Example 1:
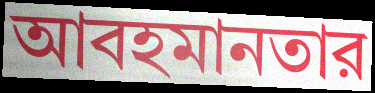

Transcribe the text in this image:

আবহমানতার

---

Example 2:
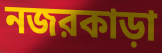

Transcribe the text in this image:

নজরকাড়া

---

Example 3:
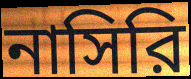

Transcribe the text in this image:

নাসিরি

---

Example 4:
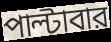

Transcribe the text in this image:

পাল্টাবার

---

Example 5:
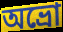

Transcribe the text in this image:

অভ্রো